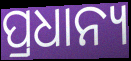
ପ୍ରଧାନ୍ୟ